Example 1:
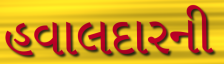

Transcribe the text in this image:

હવાલદારની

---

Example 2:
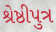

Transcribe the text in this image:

શ્રેષ્ઠીપુત્ર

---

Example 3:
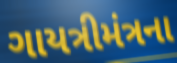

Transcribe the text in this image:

ગાયત્રીમંત્રના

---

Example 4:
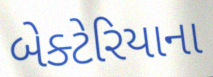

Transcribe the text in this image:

બેક્ટેરિયાના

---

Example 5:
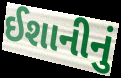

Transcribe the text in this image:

ઈશાનીનું